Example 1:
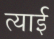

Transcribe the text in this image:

त्याई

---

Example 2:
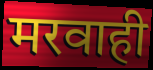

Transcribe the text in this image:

मरवाही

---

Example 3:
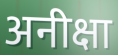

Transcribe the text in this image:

अनीक्षा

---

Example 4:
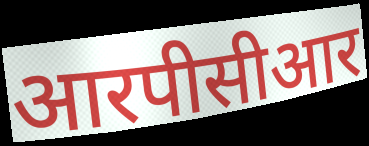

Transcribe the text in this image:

आरपीसीआर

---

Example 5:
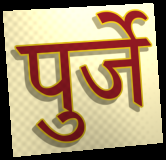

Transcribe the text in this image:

पुर्जे